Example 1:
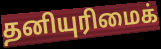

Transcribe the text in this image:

தனியுரிமைக்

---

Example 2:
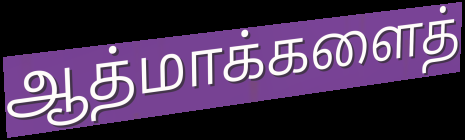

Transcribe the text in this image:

ஆத்மாக்களைத்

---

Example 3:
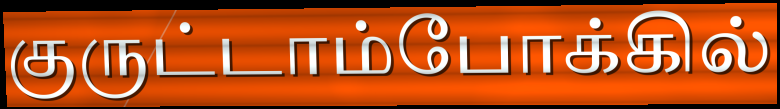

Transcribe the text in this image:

குருட்டாம்போக்கில்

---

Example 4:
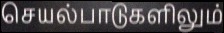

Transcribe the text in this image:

செயல்பாடுகளிலும்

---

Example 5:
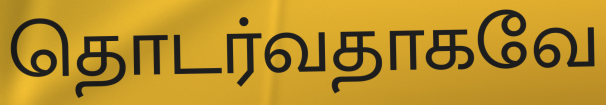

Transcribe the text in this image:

தொடர்வதாகவே